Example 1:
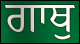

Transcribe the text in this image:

ਗਾਥੁ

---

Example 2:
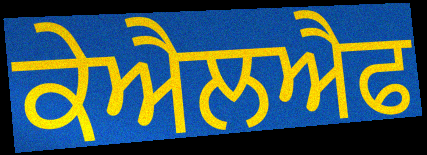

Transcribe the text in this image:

ਕੇਐਲਐਫ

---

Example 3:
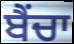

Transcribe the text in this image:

ਬੈਂਚਾ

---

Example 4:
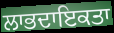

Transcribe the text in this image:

ਲਾਭਦਾਇਕਤਾ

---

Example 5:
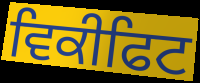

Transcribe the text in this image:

ਵਿਕੀਫਿਟ